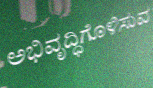
ಅಭಿವೃದ್ಧಿಗೊಳಿಸುವ